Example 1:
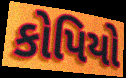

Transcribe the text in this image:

કોપિયો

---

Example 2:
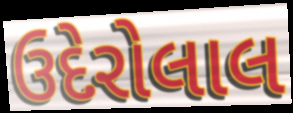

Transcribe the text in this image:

ઉદેરોલાલ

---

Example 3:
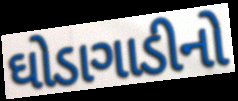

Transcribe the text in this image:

ઘોડાગાડીનો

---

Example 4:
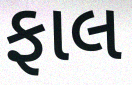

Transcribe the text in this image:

ફાલ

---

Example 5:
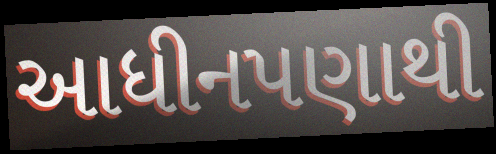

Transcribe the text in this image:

આધીનપણાથી